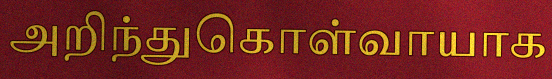
அறிந்துகொள்வாயாக